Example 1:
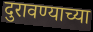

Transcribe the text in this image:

दुरावण्याच्या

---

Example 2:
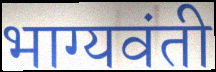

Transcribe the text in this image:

भाग्यवंती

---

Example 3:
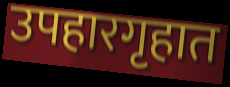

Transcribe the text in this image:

उपहारगृहात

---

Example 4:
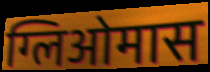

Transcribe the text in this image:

ग्लिओमास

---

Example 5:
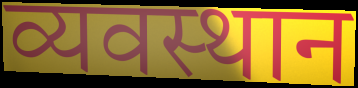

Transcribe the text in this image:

व्यवस्थान